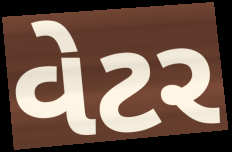
વેટર